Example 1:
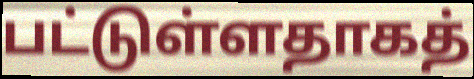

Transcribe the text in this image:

பட்டுள்ளதாகத்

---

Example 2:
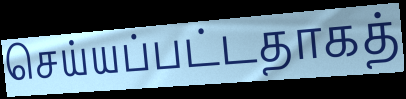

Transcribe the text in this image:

செய்யப்பட்டதாகத்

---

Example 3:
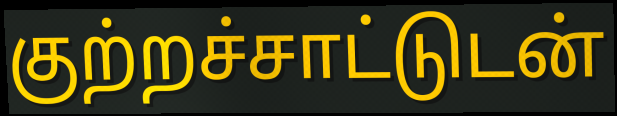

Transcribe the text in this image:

குற்றச்சாட்டுடன்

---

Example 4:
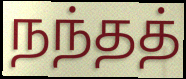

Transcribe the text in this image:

நந்தத்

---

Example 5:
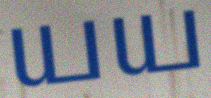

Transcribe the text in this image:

யய